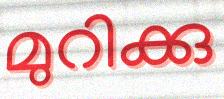
മുറിക്കു